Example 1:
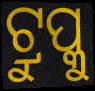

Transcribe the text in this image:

ଟ୍ରୁପ୍କୁ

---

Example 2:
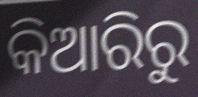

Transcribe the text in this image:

କିଆରିରୁ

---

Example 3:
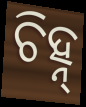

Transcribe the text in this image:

ଚିହ୍ନ୍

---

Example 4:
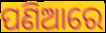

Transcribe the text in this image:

ପଣିଆରେ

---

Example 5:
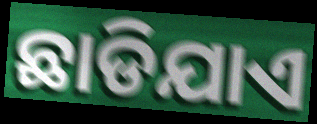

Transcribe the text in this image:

ଛାଡିଯାଏ